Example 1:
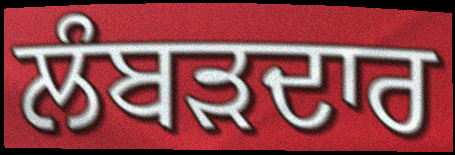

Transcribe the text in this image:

ਲੰਬੜਦਾਰ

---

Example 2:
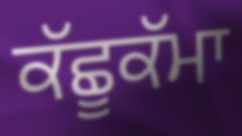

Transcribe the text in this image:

ਕੱਛੂਕੱਮਾ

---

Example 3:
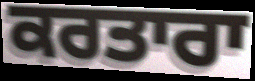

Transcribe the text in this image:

ਕਰਤਾਰਾ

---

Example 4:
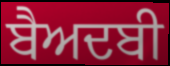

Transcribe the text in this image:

ਬੈਅਦਬੀ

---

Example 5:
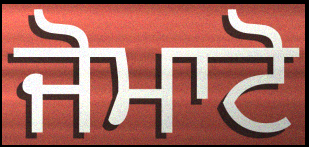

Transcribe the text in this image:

ਜੋਮਾਟੋ